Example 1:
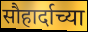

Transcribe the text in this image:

सौहार्दाच्या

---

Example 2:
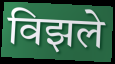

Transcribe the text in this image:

विझले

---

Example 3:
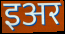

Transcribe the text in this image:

इअर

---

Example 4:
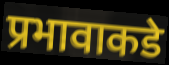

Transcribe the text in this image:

प्रभावाकडे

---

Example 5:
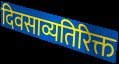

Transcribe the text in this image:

दिवसाव्यतिरिक्त